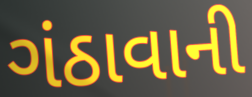
ગંઠાવાની